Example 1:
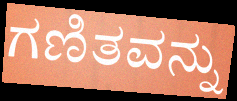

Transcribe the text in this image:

ಗಣಿತವನ್ನು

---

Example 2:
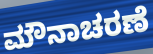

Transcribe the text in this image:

ಮೌನಾಚರಣೆ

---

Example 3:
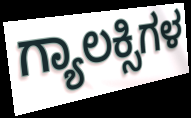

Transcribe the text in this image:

ಗ್ಯಾಲಕ್ಸಿಗಳ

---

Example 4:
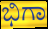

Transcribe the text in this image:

ಭಿಗಾ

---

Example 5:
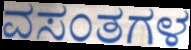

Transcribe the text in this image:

ವಸಂತಗಳ